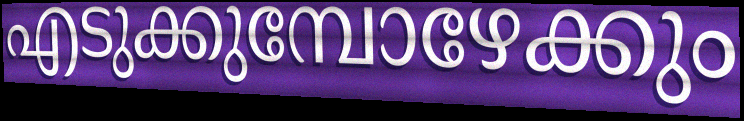
എടുക്കുമ്പോഴേക്കും